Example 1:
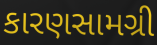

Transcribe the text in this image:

કારણસામગ્રી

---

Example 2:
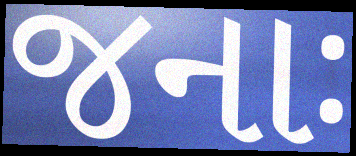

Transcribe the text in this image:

જનાઃ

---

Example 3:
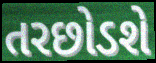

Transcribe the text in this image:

તરછોડશે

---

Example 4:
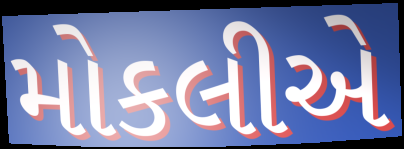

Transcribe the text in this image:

મોકલીએ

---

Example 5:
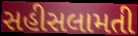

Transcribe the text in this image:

સહીસલામતી